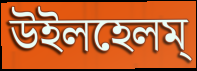
উইলহেলম্